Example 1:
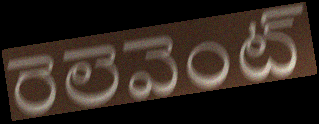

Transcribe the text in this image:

రెలెవెంట్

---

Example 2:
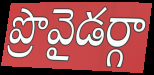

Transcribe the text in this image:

ప్రొవైడర్గా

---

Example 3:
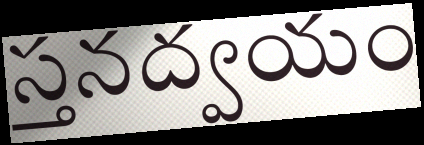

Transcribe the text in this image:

స్తనద్వయం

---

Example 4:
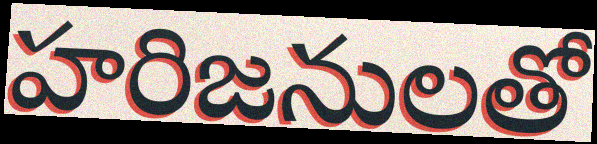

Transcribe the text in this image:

హరిజనులతో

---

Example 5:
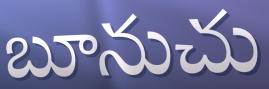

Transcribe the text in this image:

బూనుచు